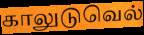
காலுடுவெல்